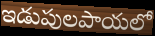
ఇడుపులపాయలో